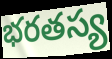
భరతస్య